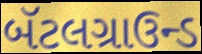
બૅટલગ્રાઉન્ડ